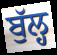
ਬੁੱਲ੍ਹ